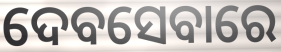
ଦେବସେବାରେ